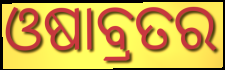
ଓଷାବ୍ରତର